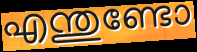
എന്തുണ്ടോ